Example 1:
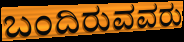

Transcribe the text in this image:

ಬಂದಿರುವವರು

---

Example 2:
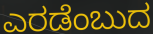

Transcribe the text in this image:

ಎರಡೆಂಬುದ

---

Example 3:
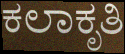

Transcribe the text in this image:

ಕಲಾಕೃತಿ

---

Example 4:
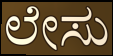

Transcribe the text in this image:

ಲೇಸು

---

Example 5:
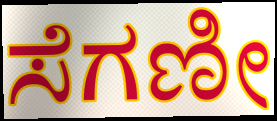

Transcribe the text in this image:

ಸೆಗಣೀ